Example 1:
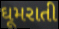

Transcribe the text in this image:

ઘૂમરાતી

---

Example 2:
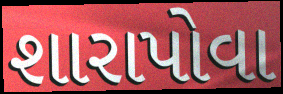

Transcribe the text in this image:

શારાપોવા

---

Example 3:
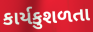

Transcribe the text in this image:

કાર્યકુશળતા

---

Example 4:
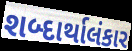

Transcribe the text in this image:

શબ્દાર્થાલંકાર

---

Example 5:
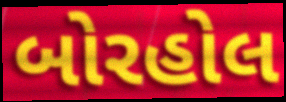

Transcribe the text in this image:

બોરહોલ